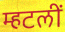
म्हटलीं